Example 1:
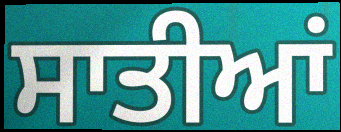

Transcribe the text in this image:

ਸਾਤੀਆਂ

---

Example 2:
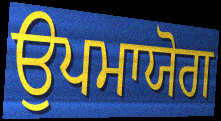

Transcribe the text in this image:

ਉਪਮਾਯੋਗ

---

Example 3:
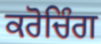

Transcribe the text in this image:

ਕਰੋਚਿੰਗ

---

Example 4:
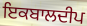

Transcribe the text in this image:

ਇਕਬਾਲਦੀਪ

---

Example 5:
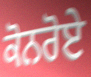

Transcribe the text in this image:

ਕੋਨਰੋਏ